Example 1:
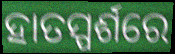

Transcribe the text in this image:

ହାତସ୍ପର୍ଶରେ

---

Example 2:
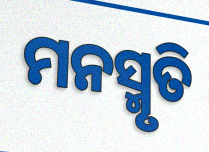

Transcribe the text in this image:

ମନସ୍ମୃତି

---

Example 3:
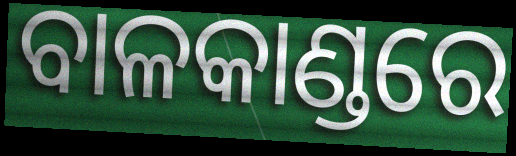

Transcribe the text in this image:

ବାଳକାଣ୍ଡରେ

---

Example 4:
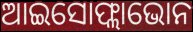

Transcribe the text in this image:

ଆଇସୋଫ୍ଲାଭୋନ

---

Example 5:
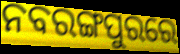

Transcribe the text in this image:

ନବରଙ୍ଗପୁରରେ